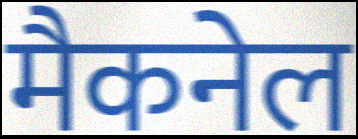
मैकनेल